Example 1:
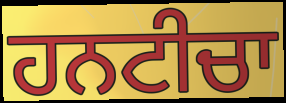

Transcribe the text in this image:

ਹਨਟੀਚਾ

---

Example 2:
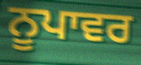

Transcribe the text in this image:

ਨੂਪਾਵਰ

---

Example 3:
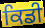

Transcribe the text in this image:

ਕਿਡੀ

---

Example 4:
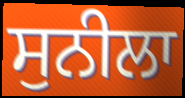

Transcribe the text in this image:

ਸੁਨੀਲਾ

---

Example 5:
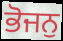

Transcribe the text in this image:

ਭੋਜਨੁ